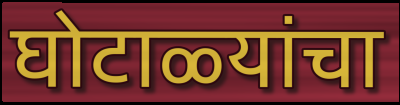
घोटाळ्यांचा